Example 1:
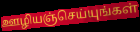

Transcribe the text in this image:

ஊழியஞ்செய்யுங்கள்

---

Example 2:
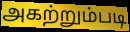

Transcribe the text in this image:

அகற்றும்படி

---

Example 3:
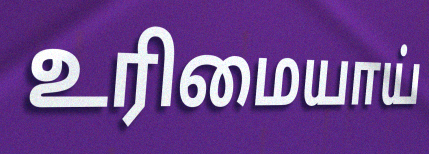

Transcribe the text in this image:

உரிமையாய்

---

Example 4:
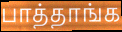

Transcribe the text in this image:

பாத்தாங்க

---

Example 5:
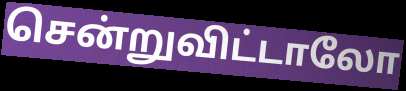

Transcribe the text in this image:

சென்றுவிட்டாலோ